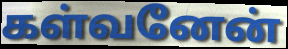
கள்வனேன்